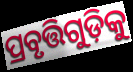
ପ୍ରବୃତ୍ତିଗୁଡ଼ିକୁ